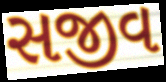
સજીવ